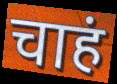
चाहं